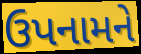
ઉપનામને